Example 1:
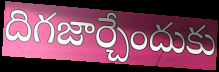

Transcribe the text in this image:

దిగజార్చేందుకు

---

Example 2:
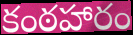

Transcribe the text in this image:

కంఠహారం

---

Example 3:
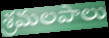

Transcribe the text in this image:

శ్రమలపాలు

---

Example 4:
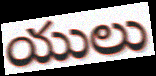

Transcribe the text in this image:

యులు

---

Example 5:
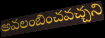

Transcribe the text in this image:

అవలంబించవచ్చని